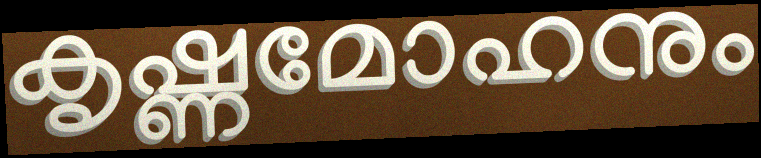
കൃഷ്ണമോഹനും